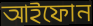
আইফোন